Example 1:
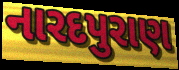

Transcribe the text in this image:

નારદપુરાણ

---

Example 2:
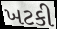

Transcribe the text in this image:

ખટકી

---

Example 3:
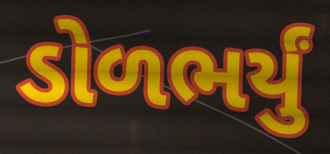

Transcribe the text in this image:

ડોળભર્યું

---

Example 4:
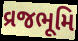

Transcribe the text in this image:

વ્રજભૂમિ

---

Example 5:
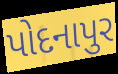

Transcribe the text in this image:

પોદનાપુર